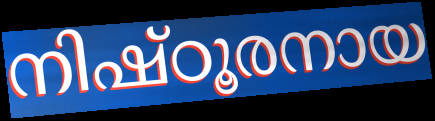
നിഷ്ഠൂരനായ